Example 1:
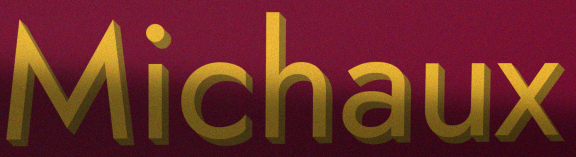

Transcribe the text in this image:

Michaux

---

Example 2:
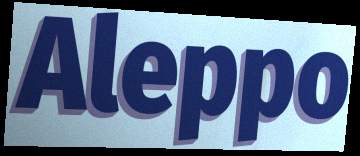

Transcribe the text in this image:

Aleppo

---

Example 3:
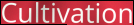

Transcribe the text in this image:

Cultivation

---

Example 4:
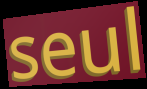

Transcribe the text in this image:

seul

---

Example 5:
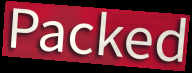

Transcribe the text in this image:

Packed